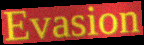
Evasion